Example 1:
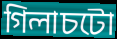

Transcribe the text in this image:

গিলাচটো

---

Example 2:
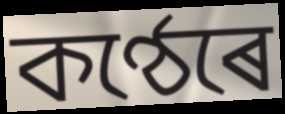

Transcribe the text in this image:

কণ্ঠেৰে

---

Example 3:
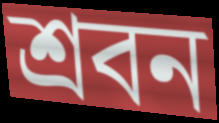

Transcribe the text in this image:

শ্ৰবন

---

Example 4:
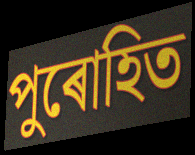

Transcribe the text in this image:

পুৰোহিত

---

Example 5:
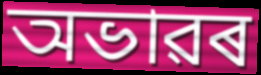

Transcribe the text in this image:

অভাৱৰ